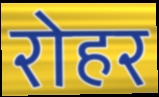
रोहर